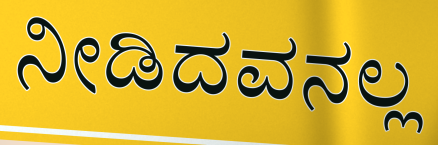
ನೀಡಿದವನಲ್ಲ